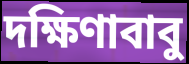
দক্ষিণাবাবু